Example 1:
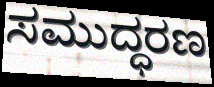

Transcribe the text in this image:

ಸಮುದ್ಧರಣ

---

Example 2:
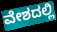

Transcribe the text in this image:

ವೇಶದಲ್ಲಿ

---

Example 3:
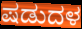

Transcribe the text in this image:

ಷಡುದಳ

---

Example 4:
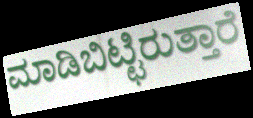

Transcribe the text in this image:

ಮಾಡಿಬಿಟ್ಟಿರುತ್ತಾರೆ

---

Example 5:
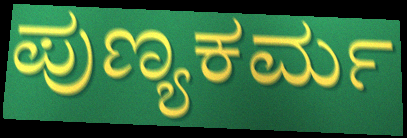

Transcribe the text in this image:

ಪುಣ್ಯಕರ್ಮ